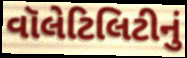
વૉલેટિલિટીનું